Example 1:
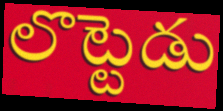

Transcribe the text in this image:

లొట్టెడు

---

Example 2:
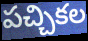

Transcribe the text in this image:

పచ్చికల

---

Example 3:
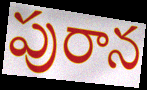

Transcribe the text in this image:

పురాన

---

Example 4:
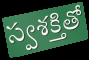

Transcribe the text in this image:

స్వశక్తితో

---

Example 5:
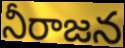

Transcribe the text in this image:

నీరాజన